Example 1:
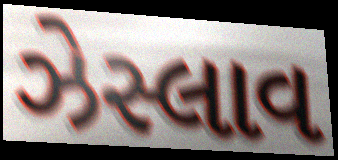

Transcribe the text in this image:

ઝેસ્લાવ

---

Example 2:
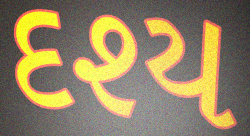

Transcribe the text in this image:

દશ્ય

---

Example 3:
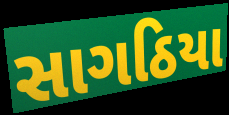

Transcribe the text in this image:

સાગઠિયા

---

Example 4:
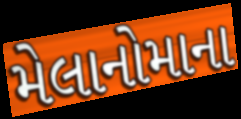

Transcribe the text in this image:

મેલાનોમાના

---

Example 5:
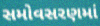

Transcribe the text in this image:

સમોવસરણમાં